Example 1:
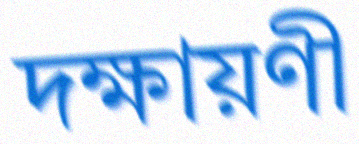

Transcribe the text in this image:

দক্ষায়ণী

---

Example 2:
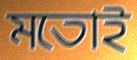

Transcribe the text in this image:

মতোই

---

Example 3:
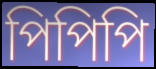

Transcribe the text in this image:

পিপিপি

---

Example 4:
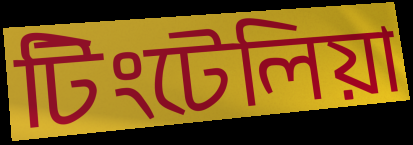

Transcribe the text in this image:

টিংটেলিয়া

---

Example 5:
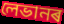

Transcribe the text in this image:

লেভানৰ